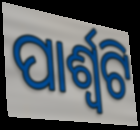
ପାର୍ଶ୍ଵଟି